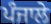
ਪੰਜਾਲੇ